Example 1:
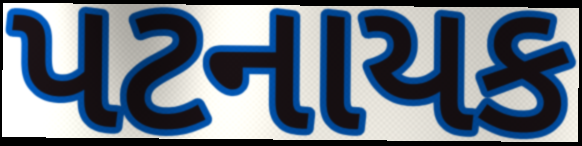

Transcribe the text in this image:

પટનાયક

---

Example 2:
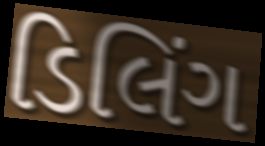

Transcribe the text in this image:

ડિલિંગ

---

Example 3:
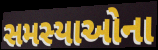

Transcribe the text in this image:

સમસ્યાઓના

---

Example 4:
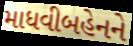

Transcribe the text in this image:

માધવીબહેનને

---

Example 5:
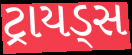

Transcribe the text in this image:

ટ્રાયડ્સ